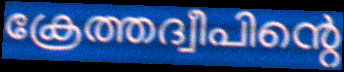
ക്രേത്തദ്വീപിന്റെ